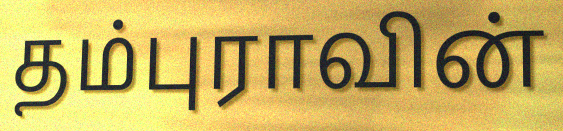
தம்புராவின்